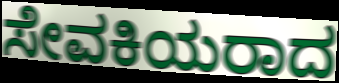
ಸೇವಕಿಯರಾದ